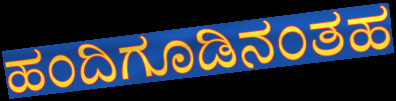
ಹಂದಿಗೂಡಿನಂತಹ